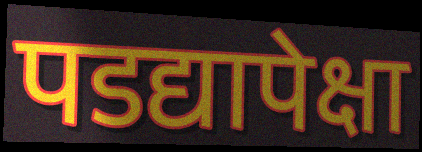
पडद्यापेक्षा